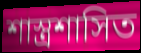
শাস্ত্রশাসিত